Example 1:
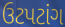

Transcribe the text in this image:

ઉટપટાંગ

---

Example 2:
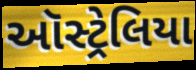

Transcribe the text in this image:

ઑસ્ટ્રેલિયા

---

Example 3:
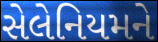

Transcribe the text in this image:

સેલેનિયમને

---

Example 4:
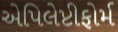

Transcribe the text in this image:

એપિલેપ્ટીફોર્મ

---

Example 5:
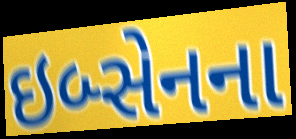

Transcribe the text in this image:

ઇબ્સેનના